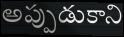
అప్పుడుకాని